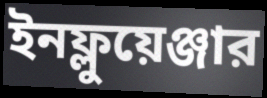
ইনফ্লুয়েঞ্জার